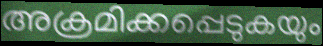
അക്രമിക്കപ്പെടുകയും